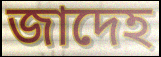
জাদেহ